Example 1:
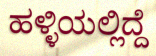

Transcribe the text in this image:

ಹಳ್ಳಿಯಲ್ಲಿದ್ದೆ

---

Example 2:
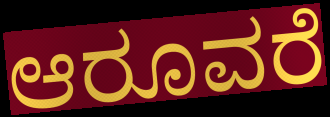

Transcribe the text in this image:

ಆರೂವರೆ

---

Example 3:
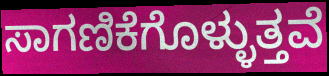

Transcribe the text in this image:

ಸಾಗಣಿಕೆಗೊಳ್ಳುತ್ತವೆ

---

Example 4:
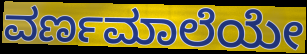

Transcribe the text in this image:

ವರ್ಣಮಾಲೆಯೇ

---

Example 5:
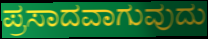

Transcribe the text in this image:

ಪ್ರಸಾದವಾಗುವುದು